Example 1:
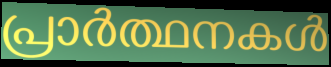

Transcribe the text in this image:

പ്രാർത്ഥനകൾ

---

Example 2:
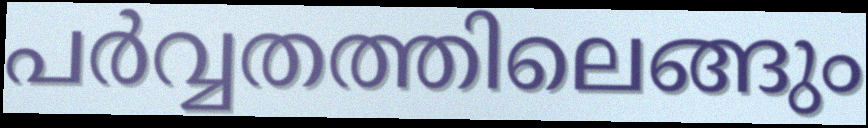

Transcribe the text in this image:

പർവ്വതത്തിലെങ്ങും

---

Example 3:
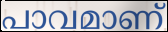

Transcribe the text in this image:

പാവമാണ്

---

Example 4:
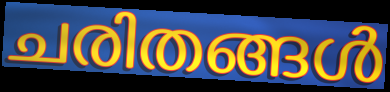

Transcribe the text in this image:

ചരിതങ്ങൾ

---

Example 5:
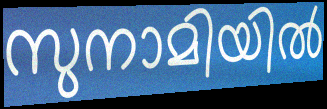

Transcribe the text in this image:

സുനാമിയിൽ